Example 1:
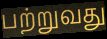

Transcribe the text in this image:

பற்றுவது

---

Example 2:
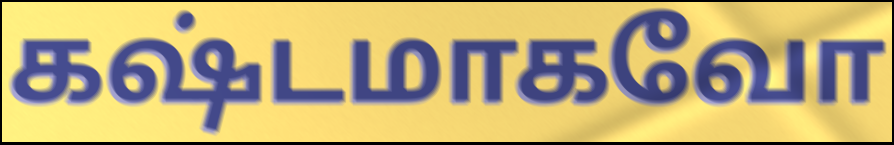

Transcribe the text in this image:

கஷ்டமாகவோ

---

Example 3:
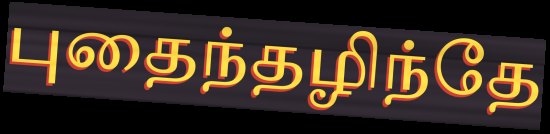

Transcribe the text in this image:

புதைந்தழிந்தே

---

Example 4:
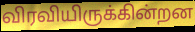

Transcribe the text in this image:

விரவியிருக்கின்றன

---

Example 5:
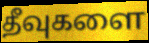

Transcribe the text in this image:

தீவுகளை